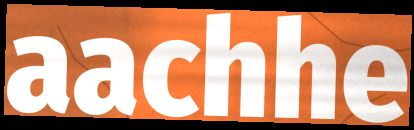
aachhe